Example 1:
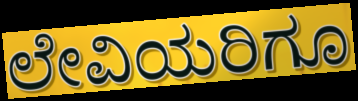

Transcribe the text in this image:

ಲೇವಿಯರಿಗೂ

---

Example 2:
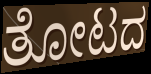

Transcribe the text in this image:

ತೋಟದ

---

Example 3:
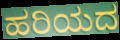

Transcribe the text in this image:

ಹರಿಯದ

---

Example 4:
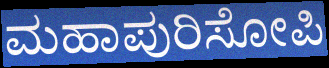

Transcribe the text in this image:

ಮಹಾಪುರಿಸೋಪಿ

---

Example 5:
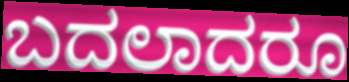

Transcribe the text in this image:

ಬದಲಾದರೂ